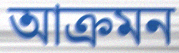
আক্ৰমন